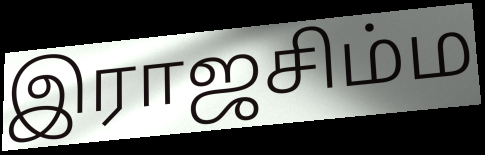
இராஜசிம்ம